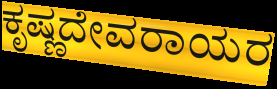
ಕೃಷ್ಣದೇವರಾಯರ